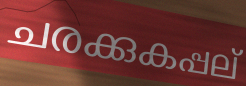
ചരക്കുകപ്പല്